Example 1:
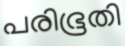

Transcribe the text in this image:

പരിഭൂതി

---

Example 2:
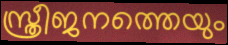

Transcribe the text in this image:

സ്ത്രീജനത്തെയും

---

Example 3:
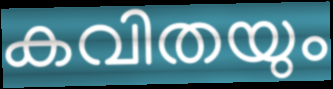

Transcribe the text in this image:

കവിതയും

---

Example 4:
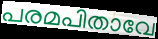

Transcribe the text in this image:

പരമപിതാവേ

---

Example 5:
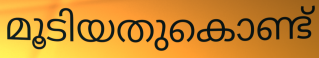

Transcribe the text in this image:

മൂടിയതുകൊണ്ട്